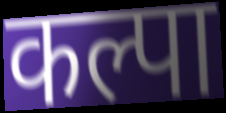
कल्पा